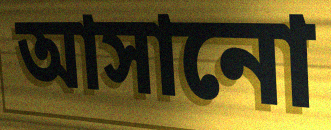
আসানো